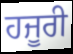
ਹਜੂਰੀ